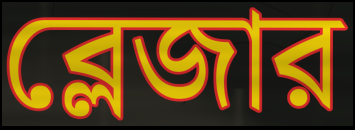
ব্লেজার